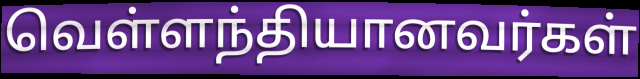
வெள்ளந்தியானவர்கள்